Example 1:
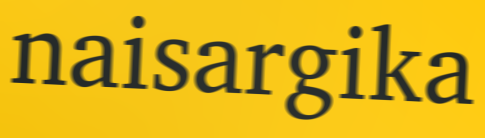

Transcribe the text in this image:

naisargika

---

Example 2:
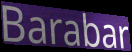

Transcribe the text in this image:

Barabar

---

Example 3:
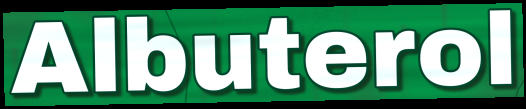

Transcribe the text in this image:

Albuterol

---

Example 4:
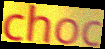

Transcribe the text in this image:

choc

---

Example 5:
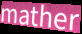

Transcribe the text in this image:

mather